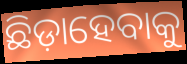
ଛିଡ଼ାହେବାକୁ